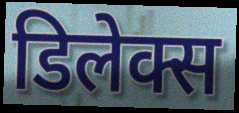
डिलेक्स